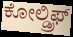
ಕೋಲ್ಡ್ರಿಫ್